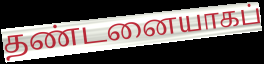
தண்டனையாகப்